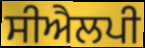
ਸੀਐਲਪੀ